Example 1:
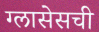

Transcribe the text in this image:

ग्लासेसची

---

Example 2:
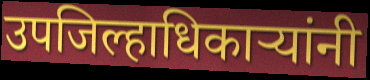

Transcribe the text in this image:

उपजिल्हाधिकाऱ्यांनी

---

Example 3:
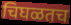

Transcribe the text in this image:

चिघळतच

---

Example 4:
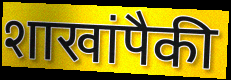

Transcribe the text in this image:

शाखांपैकी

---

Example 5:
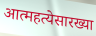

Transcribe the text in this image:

आत्महत्येसारख्या